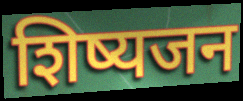
शिष्यजन